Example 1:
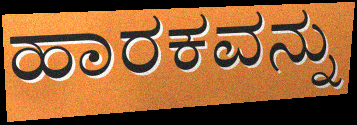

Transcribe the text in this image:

ಹಾರಕವನ್ನು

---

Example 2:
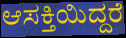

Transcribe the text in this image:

ಆಸಕ್ತಿಯಿದ್ದರೆ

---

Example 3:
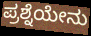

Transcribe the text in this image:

ಪ್ರಶ್ನೆಯೇನು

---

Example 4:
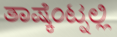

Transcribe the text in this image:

ತಾಷ್ಕೆಂಟ್ನಲ್ಲಿ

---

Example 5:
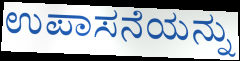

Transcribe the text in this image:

ಉಪಾಸನೆಯನ್ನು